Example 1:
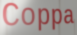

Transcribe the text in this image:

Coppa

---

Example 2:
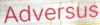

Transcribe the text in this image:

Adversus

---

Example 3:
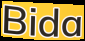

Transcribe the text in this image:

Bida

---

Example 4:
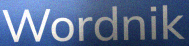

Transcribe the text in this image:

Wordnik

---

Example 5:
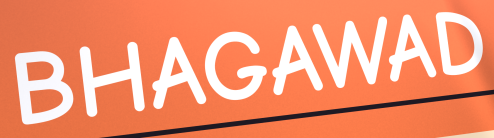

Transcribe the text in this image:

BHAGAWAD